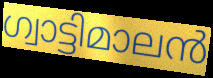
ഗ്വാട്ടിമാലൻ